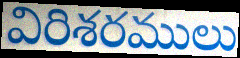
విరిశరములు